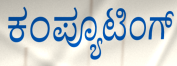
ಕಂಪ್ಯೂಟಿಂಗ್